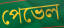
পেভেল